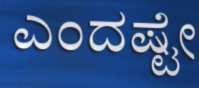
ಎಂದಷ್ಟೇ